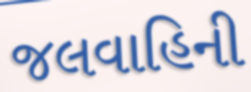
જલવાહિની